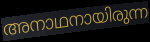
അനാഥനായിരുന്ന